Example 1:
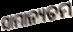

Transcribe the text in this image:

ସାମାନ୍ୟତମ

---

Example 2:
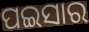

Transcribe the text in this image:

ପଇସାର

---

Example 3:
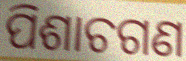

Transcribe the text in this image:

ପିଶାଚଗଣ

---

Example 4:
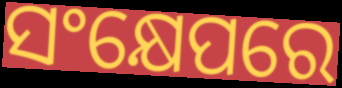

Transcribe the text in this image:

ସଂକ୍ଷେପରେ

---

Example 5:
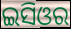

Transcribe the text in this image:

ଇସିଓର